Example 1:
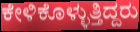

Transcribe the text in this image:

ಕೇಳಿಕೊಳ್ಳುತ್ತಿದ್ದರು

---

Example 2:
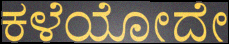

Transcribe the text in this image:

ಕಳೆಯೋದೇ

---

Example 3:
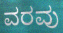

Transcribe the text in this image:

ವರವು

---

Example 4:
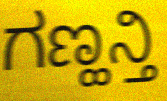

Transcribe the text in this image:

ಗಣ್ಹನ್ತಿ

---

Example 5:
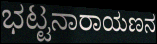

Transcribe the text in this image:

ಭಟ್ಟನಾರಾಯಣನ